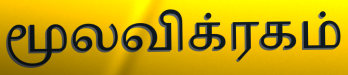
மூலவிக்ரகம்